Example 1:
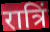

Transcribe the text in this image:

रात्रिं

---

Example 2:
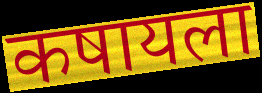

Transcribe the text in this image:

कषायला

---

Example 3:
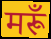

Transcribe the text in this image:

मरूँ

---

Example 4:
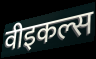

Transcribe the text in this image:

वीइकल्‍स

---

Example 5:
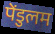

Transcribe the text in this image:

पेंडुलम